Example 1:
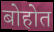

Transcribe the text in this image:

बोहोत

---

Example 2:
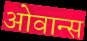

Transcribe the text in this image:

ओवान्स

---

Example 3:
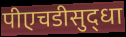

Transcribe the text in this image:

पीएचडीसुद्धा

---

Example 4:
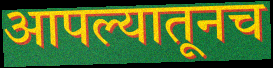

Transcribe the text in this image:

आपल्यातूनच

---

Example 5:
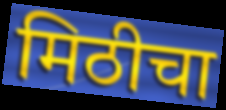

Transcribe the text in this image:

मिठीचा